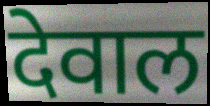
देवाल